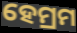
ହେମ୍ରମ